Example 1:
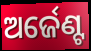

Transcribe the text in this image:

ଅର୍ଜେଣ୍ଟ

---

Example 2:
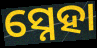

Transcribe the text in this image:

ସ୍ନେହା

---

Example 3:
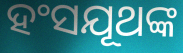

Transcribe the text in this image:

ହଂସଯୂଥଙ୍କ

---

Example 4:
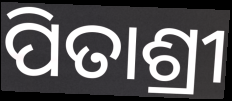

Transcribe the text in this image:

ପିତାଶ୍ରୀ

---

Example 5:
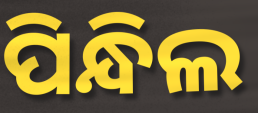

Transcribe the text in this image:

ପିନ୍ଧିଲ